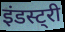
इंडस्ट्री